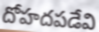
దోహదపడేవి